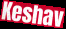
Keshav